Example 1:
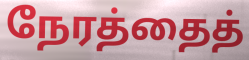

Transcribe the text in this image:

நேரத்தைத்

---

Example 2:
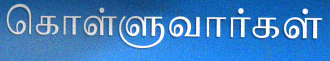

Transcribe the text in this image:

கொள்ளுவார்கள்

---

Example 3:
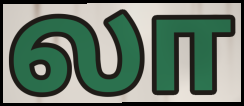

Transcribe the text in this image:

லா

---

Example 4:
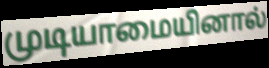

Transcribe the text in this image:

முடியாமையினால்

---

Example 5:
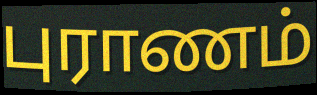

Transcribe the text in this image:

புராணம்